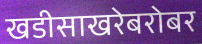
खडीसाखरेबरोबर